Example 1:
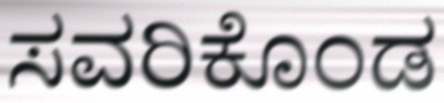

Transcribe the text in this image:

ಸವರಿಕೊಂಡ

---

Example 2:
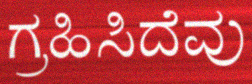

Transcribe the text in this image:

ಗ್ರಹಿಸಿದೆವು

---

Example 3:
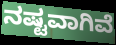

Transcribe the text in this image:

ನಷ್ಟವಾಗಿವೆ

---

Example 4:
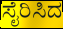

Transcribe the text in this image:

ಸೈರಿಸಿದ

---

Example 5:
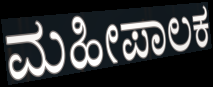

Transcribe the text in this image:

ಮಹೀಪಾಲಕ